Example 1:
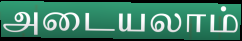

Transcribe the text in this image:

அடையலாம்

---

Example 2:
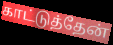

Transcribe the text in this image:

காட்டுத்தேன்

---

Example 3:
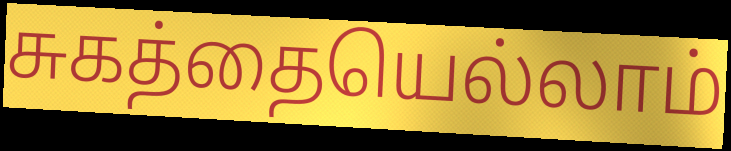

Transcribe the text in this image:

சுகத்தையெல்லாம்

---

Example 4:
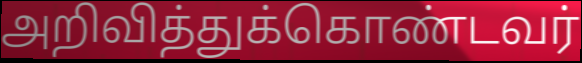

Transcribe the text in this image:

அறிவித்துக்கொண்டவர்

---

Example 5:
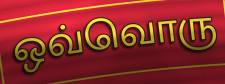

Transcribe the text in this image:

ஒவ்வொரு